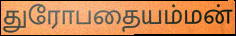
துரோபதையம்மன்